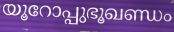
യൂറോപ്പുഭൂഖണ്ഡം